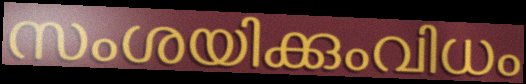
സംശയിക്കുംവിധം